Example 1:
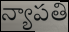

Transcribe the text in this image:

న్యాపతి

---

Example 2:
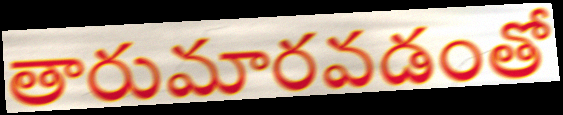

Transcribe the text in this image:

తారుమారవడంతో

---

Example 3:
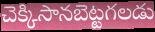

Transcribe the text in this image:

చెక్కిసానబెట్టగలడు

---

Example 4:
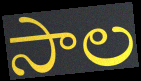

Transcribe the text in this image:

సాల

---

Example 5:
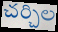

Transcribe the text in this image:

చర్చిల